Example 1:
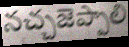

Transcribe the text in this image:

నచ్చజెప్పాలి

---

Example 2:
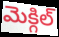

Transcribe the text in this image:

మెక్గిల్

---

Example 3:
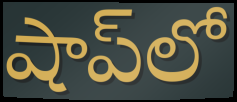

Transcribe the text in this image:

షాప్‌లో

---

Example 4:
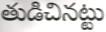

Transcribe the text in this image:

తుడిచినట్టు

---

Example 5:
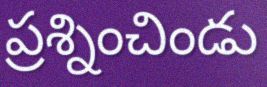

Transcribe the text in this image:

ప్రశ్నించిండు